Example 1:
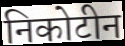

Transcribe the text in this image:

निकोटीन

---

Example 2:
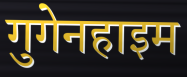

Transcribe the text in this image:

गुगेनहाइम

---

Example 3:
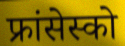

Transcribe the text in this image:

फ्रांसेस्को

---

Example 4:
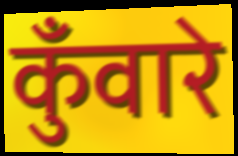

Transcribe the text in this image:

कुँवारे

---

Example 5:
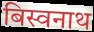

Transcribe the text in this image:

बिस्वनाथ